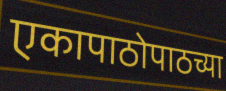
एकापाठोपाठच्या